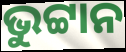
ଭୁଟ୍ଟାନ